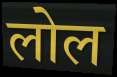
लोल